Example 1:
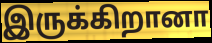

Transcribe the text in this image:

இருக்கிறானா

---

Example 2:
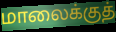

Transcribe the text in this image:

மாலைக்குத்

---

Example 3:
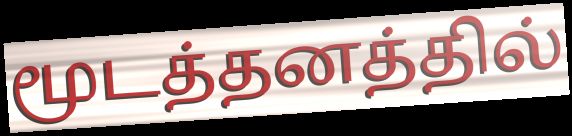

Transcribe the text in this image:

மூடத்தனத்தில்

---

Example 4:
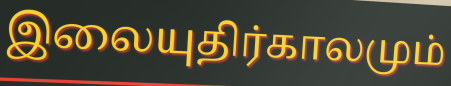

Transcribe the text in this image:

இலையுதிர்காலமும்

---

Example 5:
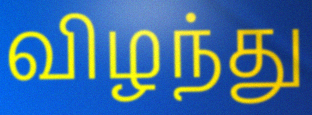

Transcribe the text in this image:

விழந்து